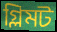
গ্লিমট